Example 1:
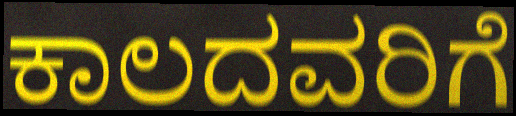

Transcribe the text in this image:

ಕಾಲದವರಿಗೆ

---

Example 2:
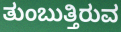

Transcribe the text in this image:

ತುಂಬುತ್ತಿರುವ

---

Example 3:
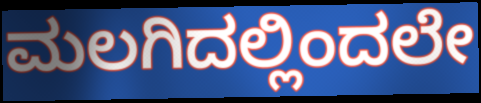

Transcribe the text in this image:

ಮಲಗಿದಲ್ಲಿಂದಲೇ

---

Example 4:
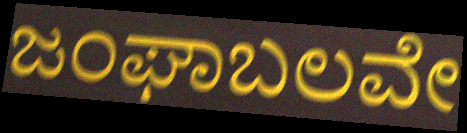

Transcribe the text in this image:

ಜಂಘಾಬಲವೇ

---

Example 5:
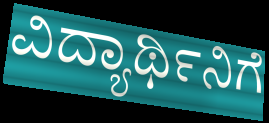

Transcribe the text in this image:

ವಿದ್ಯಾರ್ಥಿನಿಗೆ